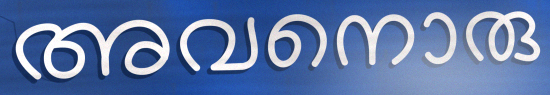
അവനൊരു